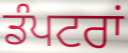
ਡੰਪਟਰਾਂ